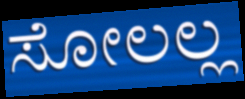
ಸೋಲಲ್ಲ